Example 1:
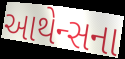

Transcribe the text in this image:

આથેન્સના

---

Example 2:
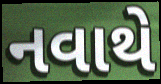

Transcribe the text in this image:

નવાથે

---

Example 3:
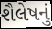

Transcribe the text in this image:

શૈલેષનું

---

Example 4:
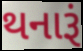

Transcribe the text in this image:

થનારૂં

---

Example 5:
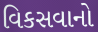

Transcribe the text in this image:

વિકસવાનો